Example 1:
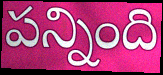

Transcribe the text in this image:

పన్నింది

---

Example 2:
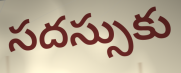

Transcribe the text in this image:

సదస్సుకు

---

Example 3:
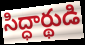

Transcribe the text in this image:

సిద్ధార్థుడి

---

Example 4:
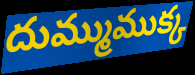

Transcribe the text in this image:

దుమ్ముముక్క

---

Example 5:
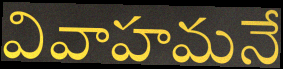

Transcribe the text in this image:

వివాహమనే